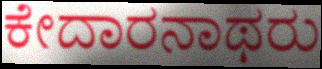
ಕೇದಾರನಾಥರು